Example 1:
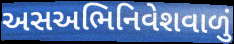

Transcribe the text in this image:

અસઅભિનિવેશવાળું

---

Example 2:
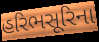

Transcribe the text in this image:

હરિભસૂરિના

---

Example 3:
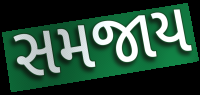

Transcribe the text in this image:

સમજાય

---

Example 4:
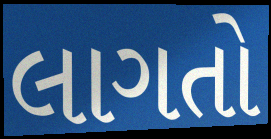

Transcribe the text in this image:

લાગતો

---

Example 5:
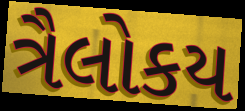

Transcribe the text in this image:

ત્રૈલોકય